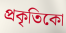
প্ৰকৃতিকো